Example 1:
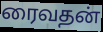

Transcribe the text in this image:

ரைவதன்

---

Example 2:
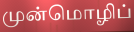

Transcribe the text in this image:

முன்மொழிப்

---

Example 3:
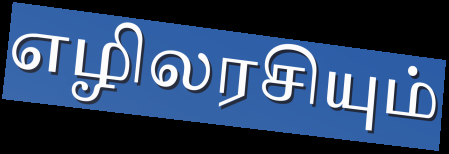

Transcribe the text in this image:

எழிலரசியும்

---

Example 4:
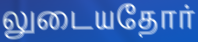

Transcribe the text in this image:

லுடையதோர்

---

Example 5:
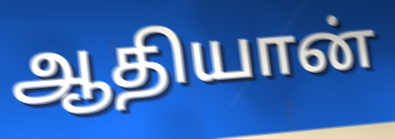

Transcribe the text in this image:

ஆதியான்